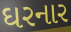
ઘરનાર